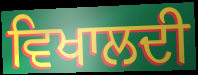
ਵਿਖਾਲਦੀ